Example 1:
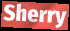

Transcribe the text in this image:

Sherry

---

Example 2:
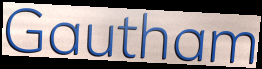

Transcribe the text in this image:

Gautham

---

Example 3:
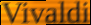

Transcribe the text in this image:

Vivaldi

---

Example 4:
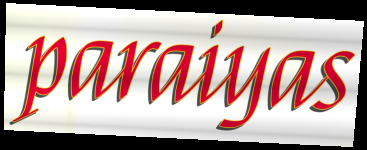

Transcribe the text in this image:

paraiyas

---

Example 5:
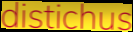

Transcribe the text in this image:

distichus